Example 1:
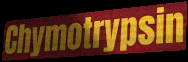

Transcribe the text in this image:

Chymotrypsin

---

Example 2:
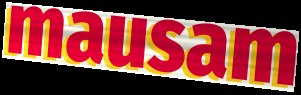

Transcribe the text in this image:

mausam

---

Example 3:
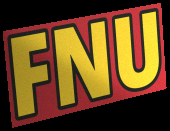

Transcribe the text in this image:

FNU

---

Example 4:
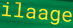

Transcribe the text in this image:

ilaage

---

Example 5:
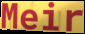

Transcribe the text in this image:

Meir